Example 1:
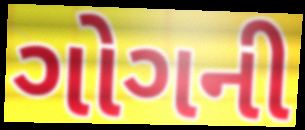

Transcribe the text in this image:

ગોગની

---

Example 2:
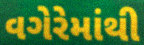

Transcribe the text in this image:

વગેરેમાંથી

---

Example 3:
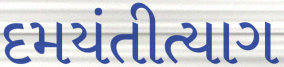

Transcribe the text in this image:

દમયંતીત્યાગ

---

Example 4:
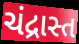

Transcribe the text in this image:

ચંદ્રાસ્ત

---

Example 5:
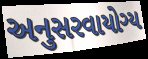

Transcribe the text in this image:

અનુસરવાયોગ્ય